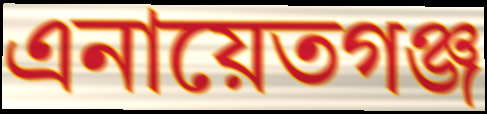
এনায়েতগঞ্জ